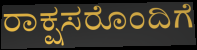
ರಾಕ್ಷಸರೊಂದಿಗೆ